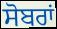
ਸੋਬਰਾਂ